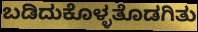
ಬಡಿದುಕೊಳ್ಳತೊಡಗಿತು